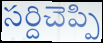
సర్దిచెప్పి